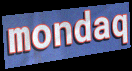
mondaq